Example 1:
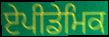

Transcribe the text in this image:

ਏਪੀਡੇਮਿਕ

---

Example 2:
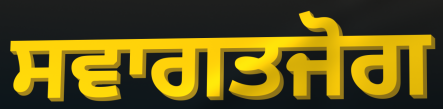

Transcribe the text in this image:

ਸਵਾਗਤਜੋਗ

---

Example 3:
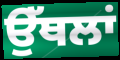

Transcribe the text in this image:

ਉੱਥਲਾਂ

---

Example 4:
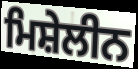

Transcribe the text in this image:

ਮਿਸ਼ੇਲੀਨ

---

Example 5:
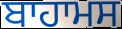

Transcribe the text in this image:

ਬਾਹਾਮਸ